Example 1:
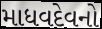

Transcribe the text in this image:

માધવદેવનો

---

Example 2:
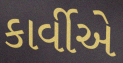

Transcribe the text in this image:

કાર્વીએ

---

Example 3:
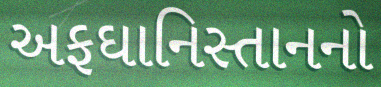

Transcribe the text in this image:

અફઘાનિસ્તાનનો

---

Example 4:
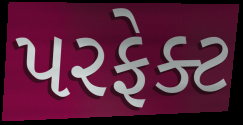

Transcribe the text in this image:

પરફેક્ટ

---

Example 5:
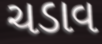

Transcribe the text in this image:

ચડાવ